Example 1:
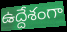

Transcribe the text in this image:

ఉద్దేశంగా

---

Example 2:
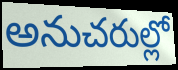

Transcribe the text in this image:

అనుచరుల్లో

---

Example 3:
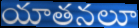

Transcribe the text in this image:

యాతనలూ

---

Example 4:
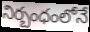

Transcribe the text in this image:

నిర్బంధంలోనే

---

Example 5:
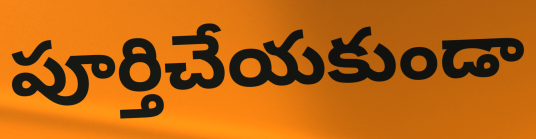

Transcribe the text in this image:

పూర్తిచేయకుండా